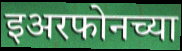
इअरफोनच्या